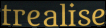
trealise